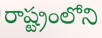
రాష్ట్రంలోని